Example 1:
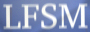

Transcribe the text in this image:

LFSM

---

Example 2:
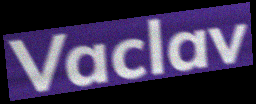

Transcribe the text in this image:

Vaclav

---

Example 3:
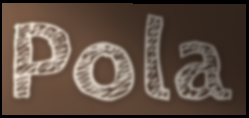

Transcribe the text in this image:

Pola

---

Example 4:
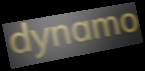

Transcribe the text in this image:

dynamo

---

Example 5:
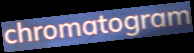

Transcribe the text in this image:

chromatogram